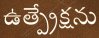
ఉత్ప్రేక్షను